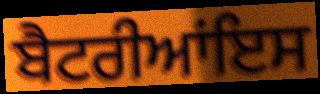
ਬੈਟਰੀਆਂਇਸ